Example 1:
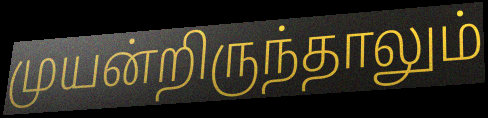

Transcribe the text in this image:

முயன்றிருந்தாலும்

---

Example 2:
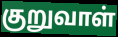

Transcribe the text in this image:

குறுவாள்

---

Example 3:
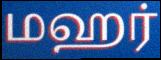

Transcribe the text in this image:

மஹர்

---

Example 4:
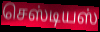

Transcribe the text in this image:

செஸ்டியஸ்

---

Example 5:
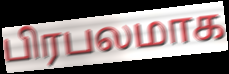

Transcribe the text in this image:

பிரபலமாக